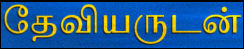
தேவியருடன்